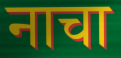
नाचा